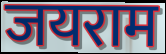
जयराम